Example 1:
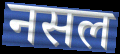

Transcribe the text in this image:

नसल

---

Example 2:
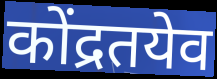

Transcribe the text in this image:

कोंद्रतयेव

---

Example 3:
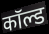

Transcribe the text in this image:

कॉल्ड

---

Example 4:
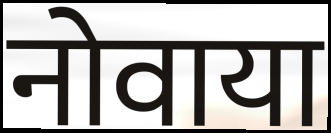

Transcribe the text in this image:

नोवाया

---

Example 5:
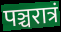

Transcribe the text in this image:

पञ्चरात्रं